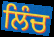
ਲਿੰਚ